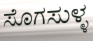
ಸೊಗಸುಳ್ಳ